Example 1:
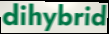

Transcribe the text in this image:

dihybrid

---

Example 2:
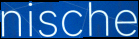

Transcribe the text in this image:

nische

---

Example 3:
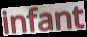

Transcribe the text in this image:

infant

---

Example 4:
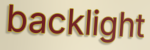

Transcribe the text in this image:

backlight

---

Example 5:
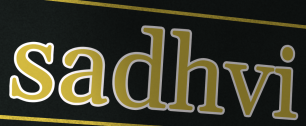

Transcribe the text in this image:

sadhvi